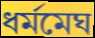
ধর্মমেঘ